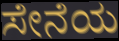
ಸೇನೆಯ